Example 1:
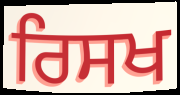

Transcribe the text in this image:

ਰਿਸਖ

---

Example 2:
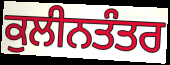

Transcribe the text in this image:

ਕੁਲੀਨਤੰਤਰ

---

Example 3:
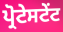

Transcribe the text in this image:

ਪ੍ਰੋਟੇਸਟੇਂਟ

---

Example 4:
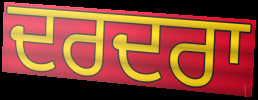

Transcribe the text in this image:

ਦਰਦਰਾ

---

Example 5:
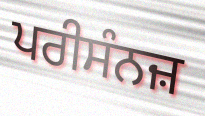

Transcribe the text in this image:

ਪਰੀਸੰਨਜ਼